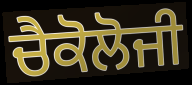
ਚੈਕੋਲੋਜੀ